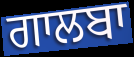
ਗਾਲਬਾ